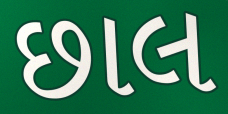
છાલ